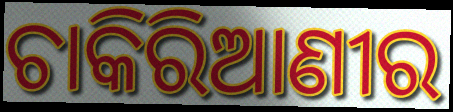
ଚାକିରିଆଣୀର